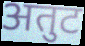
अतुट